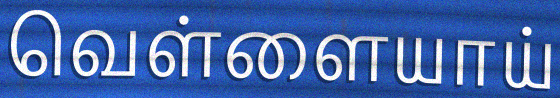
வெள்ளையாய்